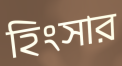
হিংসার